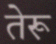
तेरू